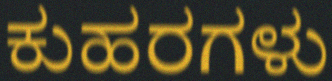
ಕುಹರಗಳು